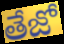
తేజో